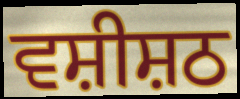
ਵਸ਼ੀਸ਼ਠ